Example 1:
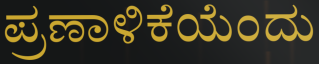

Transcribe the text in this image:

ಪ್ರಣಾಳಿಕೆಯೆಂದು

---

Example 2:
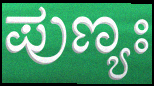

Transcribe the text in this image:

ಪುಣ್ಯಃ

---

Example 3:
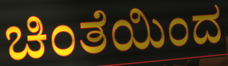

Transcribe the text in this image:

ಚಿಂತೆಯಿಂದ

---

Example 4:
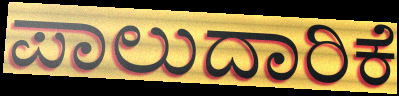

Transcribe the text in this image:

ಪಾಲುದಾರಿಕೆ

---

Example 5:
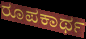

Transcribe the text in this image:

ರೂಪಕಾರ್ಥ